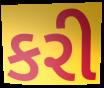
કરી